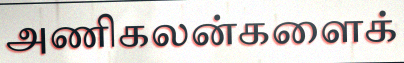
அணிகலன்களைக்